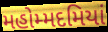
મહોમ્મદમિયાં